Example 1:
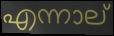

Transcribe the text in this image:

എന്നാല്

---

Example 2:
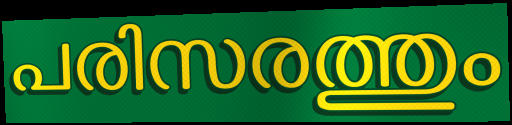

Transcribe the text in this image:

പരിസരത്തും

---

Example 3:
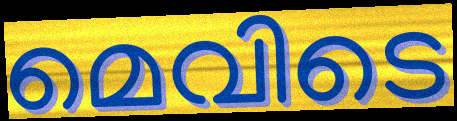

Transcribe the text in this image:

മെവിടെ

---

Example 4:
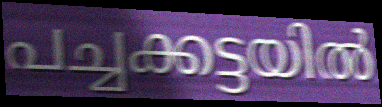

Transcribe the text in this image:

പച്ചക്കട്ടയിൽ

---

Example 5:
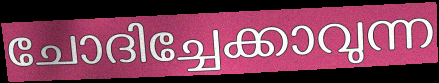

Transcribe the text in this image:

ചോദിച്ചേക്കാവുന്ന